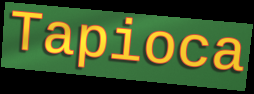
Tapioca